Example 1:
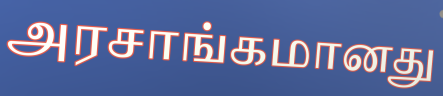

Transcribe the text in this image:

அரசாங்கமானது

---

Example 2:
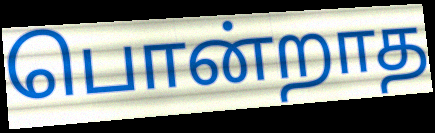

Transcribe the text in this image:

பொன்றாத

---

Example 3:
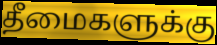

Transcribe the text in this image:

தீமைகளுக்கு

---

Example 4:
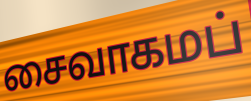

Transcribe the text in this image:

சைவாகமப்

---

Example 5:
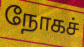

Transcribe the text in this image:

நோகச்